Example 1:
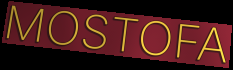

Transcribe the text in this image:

MOSTOFA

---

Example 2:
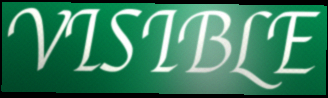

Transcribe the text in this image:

VISIBLE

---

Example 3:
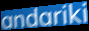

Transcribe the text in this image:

andariki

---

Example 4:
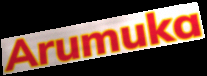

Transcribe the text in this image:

Arumuka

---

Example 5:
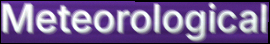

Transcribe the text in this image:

Meteorological